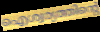
ഐശ്വര്യത്തിന്റെ